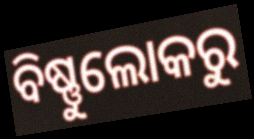
ବିଷ୍ଣୁଲୋକରୁ